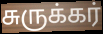
சுருக்கர்